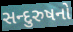
સન્દુરુષનો